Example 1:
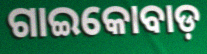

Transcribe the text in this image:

ଗାଇକୋବାଡ଼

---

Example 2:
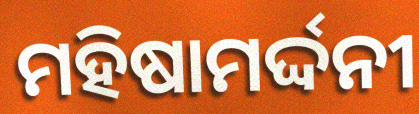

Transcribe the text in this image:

ମହିଷାମର୍ଦ୍ଦନୀ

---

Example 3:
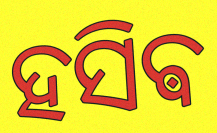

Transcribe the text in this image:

ହସିଵ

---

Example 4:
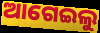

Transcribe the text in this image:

ଆଗେଇଲୁ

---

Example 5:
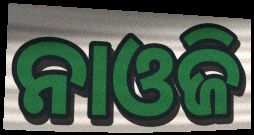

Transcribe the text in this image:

ନାଓଜି